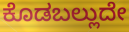
ಕೊಡಬಲ್ಲುದೇ